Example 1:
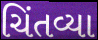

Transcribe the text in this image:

ચિંતવ્યા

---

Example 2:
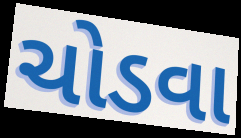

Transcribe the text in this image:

ચોડવા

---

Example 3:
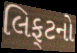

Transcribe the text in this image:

લિફ્‌ટનો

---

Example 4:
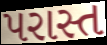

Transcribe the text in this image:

પરાસ્ત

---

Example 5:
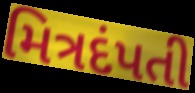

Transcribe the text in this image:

મિત્રદંપતી